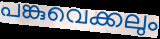
പങ്കുവെക്കലും